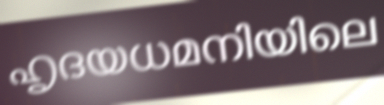
ഹൃദയധമനിയിലെ